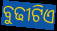
ବୁଢୀଟିଏ